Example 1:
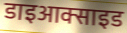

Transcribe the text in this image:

डाइआक्साइड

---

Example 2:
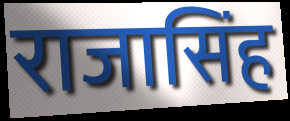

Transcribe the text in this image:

राजासिंह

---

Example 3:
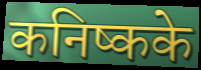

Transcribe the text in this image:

कनिष्कके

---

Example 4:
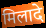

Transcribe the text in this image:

मिलादे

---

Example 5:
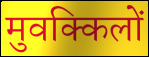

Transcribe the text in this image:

मुवक्किलों